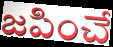
జపించే